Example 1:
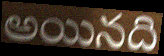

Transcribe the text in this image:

అయినది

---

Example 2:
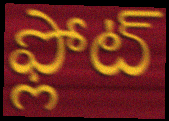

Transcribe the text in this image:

ఫ్లోట్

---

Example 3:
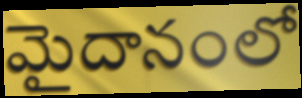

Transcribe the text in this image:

మైదానంలో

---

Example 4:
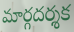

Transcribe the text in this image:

మార్గదర్శక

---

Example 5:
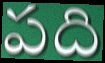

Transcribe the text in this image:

పది